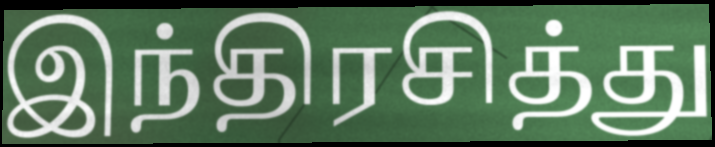
இந்திரசித்து